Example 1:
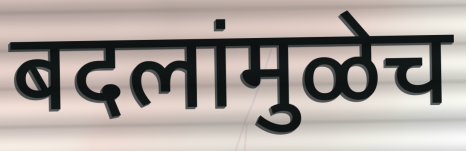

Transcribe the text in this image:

बदलांमुळेच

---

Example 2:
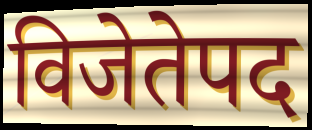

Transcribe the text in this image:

विजेतेपद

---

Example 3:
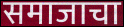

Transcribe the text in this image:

समाजाचा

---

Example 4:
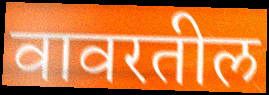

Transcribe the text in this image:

वावरतील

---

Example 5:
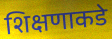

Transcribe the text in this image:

शिक्षणाकडे